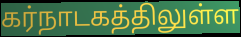
கர்நாடகத்திலுள்ள